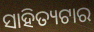
ସାହିତ୍ୟଟାର